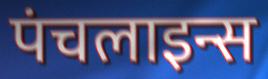
पंचलाइन्स